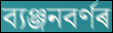
ব্যঞ্জনবৰ্ণৰ